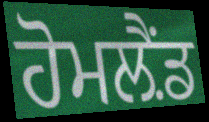
ਹੋਮਲ਼ੈਂਡ